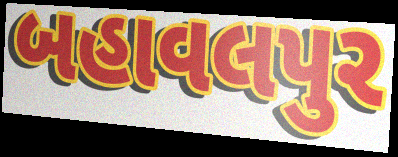
બહાવલપુર